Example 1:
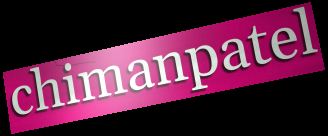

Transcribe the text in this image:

chimanpatel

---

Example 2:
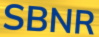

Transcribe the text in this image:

SBNR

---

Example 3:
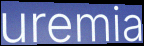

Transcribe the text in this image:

uremia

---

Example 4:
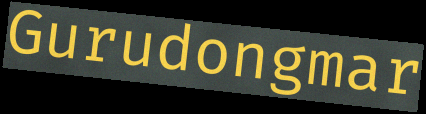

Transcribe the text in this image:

Gurudongmar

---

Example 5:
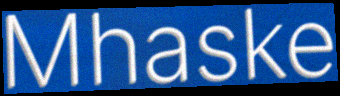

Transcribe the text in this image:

Mhaske